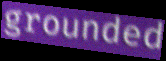
grounded